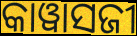
କାୱାସଜୀ